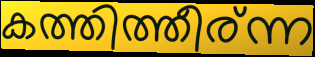
കത്തിത്തീര്ന്ന